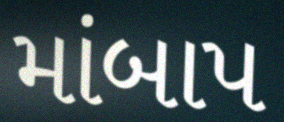
માંબાપ